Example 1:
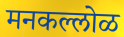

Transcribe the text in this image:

मनकल्लोळ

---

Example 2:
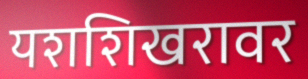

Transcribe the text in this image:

यशशिखरावर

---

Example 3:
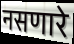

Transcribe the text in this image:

नसणारे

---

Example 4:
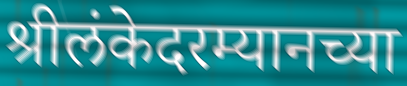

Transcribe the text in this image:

श्रीलंकेदरम्यानच्या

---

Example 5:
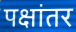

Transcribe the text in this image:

पक्षांतर